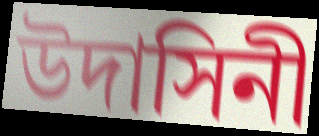
উদাসিনী